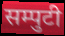
सम्पुटी